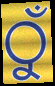
ଠୁଁ